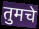
तुमचे